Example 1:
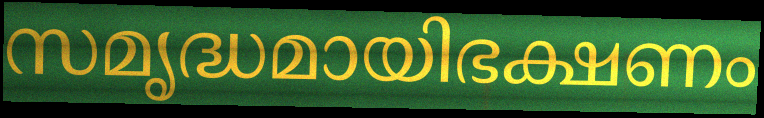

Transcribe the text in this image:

സമൃദ്ധമായിഭക്ഷണം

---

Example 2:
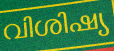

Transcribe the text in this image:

വിശിഷ്യ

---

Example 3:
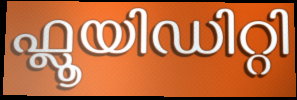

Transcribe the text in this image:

ഫ്ലൂയിഡിറ്റി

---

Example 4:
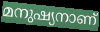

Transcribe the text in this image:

മനുഷ്യനാണ്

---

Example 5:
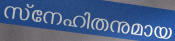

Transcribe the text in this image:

സ്‌നേഹിതനുമായ